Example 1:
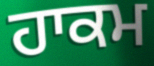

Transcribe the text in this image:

ਹਾਕਮ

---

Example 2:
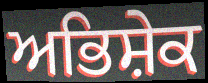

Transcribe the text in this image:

ਅਭਿਸ਼ੇਕ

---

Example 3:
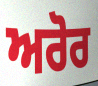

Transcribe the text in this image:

ਅਰੋਰ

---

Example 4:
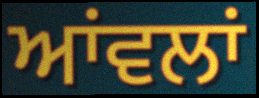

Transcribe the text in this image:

ਆਂਵਲਾਂ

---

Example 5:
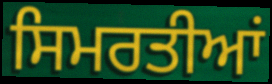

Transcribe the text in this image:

ਸਿਮਰਤੀਆਂ